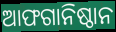
ଆଫଗାନିଷ୍ଠାନ